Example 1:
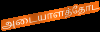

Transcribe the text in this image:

அடையாளத்தோட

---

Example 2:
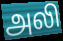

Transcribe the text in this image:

அலி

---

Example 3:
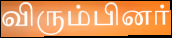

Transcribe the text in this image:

விரும்பினர்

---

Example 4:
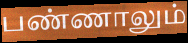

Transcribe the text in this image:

பண்ணாலும்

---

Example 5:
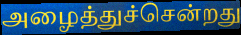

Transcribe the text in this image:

அழைத்துச்சென்றது